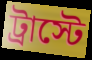
ট্রাস্টে